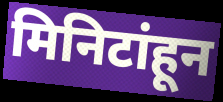
मिनिटांहून